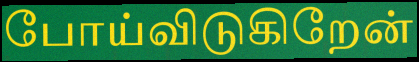
போய்விடுகிறேன்